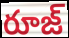
రూజ్